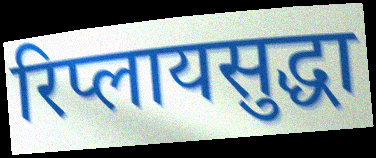
रिप्लायसुद्धा